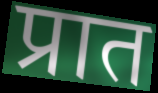
प्रात